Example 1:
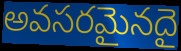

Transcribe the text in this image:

అవసరమైనదై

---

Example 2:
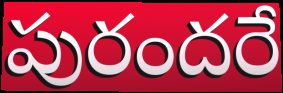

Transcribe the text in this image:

పురందరే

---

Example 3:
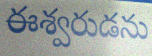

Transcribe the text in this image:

ఈశ్వరుడను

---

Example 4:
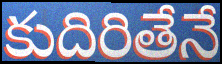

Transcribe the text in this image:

కుదిరితేనే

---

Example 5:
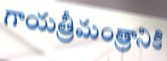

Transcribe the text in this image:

గాయత్రీమంత్రానికి